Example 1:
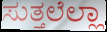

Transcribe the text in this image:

ಸುತ್ತಲೆಲ್ಲಾ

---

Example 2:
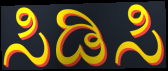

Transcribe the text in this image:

ಸಿಡಿಸಿ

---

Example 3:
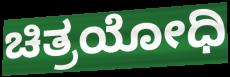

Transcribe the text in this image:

ಚಿತ್ರಯೋಧಿ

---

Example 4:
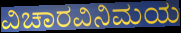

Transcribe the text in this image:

ವಿಚಾರವಿನಿಮಯ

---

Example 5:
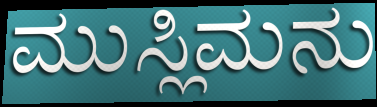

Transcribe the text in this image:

ಮುಸ್ಲಿಮನು